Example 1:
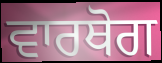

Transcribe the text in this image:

ਵਾਰਥੋਗ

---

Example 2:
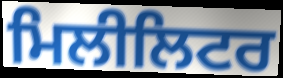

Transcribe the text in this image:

ਮਿਲੀਲਿਟਰ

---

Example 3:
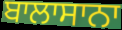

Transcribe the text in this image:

ਬਾਲਾਸਾਨਾ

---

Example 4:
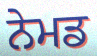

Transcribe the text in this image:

ਨੇਮਡ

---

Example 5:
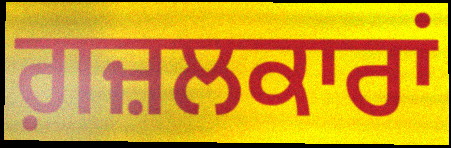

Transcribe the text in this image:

ਗ਼ਜ਼ਲਕਾਰਾਂ